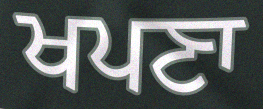
ਖਪਣਾ